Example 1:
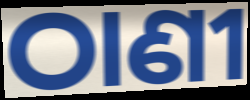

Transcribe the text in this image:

ଠାଣୀ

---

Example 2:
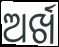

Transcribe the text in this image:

ଅର୍ଖ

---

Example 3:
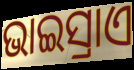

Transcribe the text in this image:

ଭାଇସ୍ରାଏ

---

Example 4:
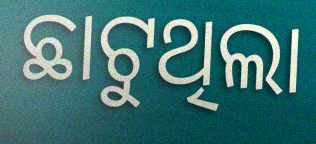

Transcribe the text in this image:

ଛାଟୁଥିଲା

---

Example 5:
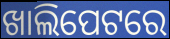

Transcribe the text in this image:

ଖାଲିପେଟରେ